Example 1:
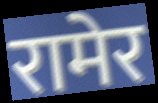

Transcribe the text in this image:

रामेर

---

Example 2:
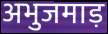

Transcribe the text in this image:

अभुजमाड़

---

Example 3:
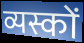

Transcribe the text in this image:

व्यस्कों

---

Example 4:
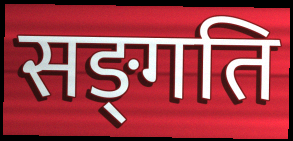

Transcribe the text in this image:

सङ्गति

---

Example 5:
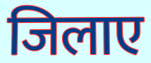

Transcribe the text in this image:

जिलाए